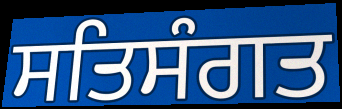
ਸਤਿਸੰਗਤ